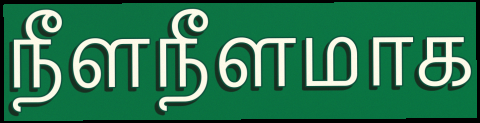
நீளநீளமாக